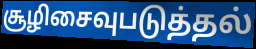
சூழிசைவுபடுத்தல்